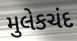
મુલેકચંદ